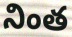
నింత